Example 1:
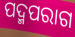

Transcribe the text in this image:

ପଦ୍ମପରାଗ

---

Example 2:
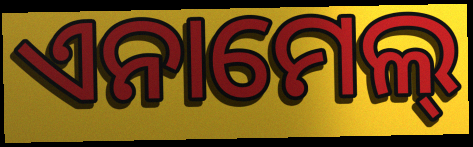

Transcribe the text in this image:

ଏନାମେଲ୍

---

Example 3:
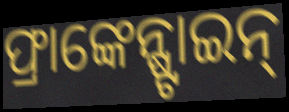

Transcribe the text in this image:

ଫ୍ରାଙ୍କେନ୍ଷ୍ଟାଇନ୍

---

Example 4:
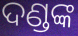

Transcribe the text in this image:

ଦଣ୍ଡଙ୍କ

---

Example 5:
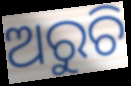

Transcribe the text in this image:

ଅରୁଚି